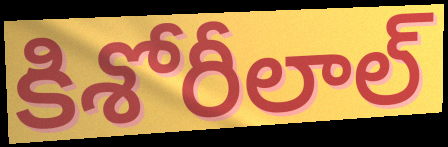
కిశోరీలాల్